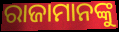
ରାଜାମାନଙ୍କୁ